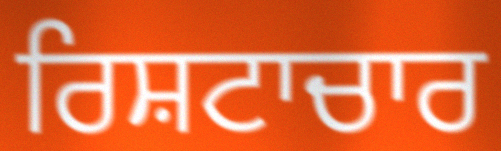
ਰਿਸ਼ਟਾਚਾਰ